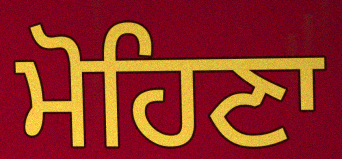
ਮੋਹਿਣਾ